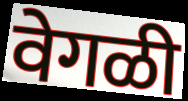
वेगळी